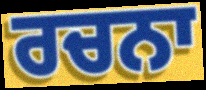
ਰਚਨਾ